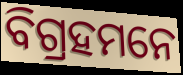
ବିଗ୍ରହମନେ